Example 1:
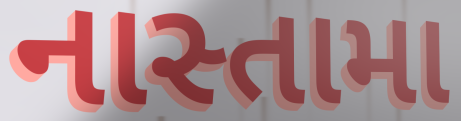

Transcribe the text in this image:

નાસ્તામા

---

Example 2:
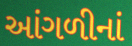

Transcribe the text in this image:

આંગળીનાં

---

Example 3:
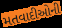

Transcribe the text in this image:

મતવાદીઓની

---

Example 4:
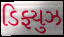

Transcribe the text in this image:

ડિફ્યુઝ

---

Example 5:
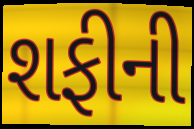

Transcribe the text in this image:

શફીની